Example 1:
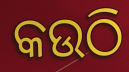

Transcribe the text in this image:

କଉଠି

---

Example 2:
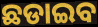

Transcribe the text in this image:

ଛଡାଇବ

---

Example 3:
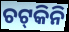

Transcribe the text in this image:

ଚଟ୍‍କିନି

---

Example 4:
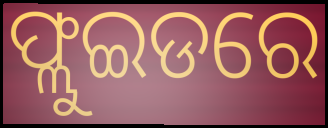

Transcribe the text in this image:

ଫ୍ଲୁଇଡରେ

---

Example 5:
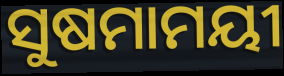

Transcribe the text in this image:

ସୁଷମାମୟୀ